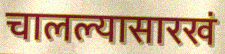
चालल्यासारखं